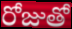
రోజుతో